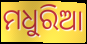
ମଧୁରିଆ